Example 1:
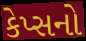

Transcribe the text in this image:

કેપ્સનો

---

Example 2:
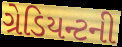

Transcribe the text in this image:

ગ્રેડિયન્ટની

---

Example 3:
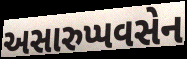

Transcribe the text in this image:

અસારુપ્પવસેન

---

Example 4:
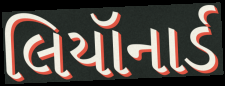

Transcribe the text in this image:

લિયૉનાર્ડ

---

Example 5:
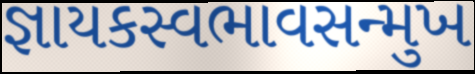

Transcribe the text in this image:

જ્ઞાયકસ્વભાવસન્મુખ